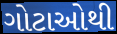
ગોટાઓથી